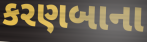
કરણબાના